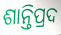
ଶାନ୍ତିପ୍ରଦ